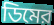
ডিমের